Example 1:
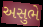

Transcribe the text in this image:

અસુભે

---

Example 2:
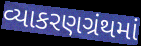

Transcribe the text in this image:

વ્યાકરણગ્રંથમાં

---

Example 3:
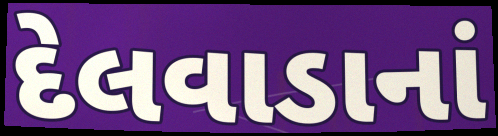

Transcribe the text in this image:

દેલવાડાનાં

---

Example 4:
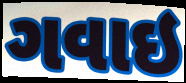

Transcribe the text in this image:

ગવાઇ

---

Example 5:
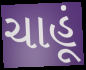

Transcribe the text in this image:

ચાહૂં